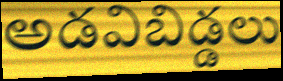
అడవిబిడ్డలు